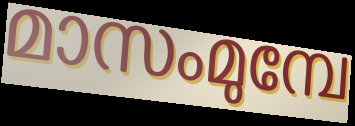
മാസംമുമ്പേ